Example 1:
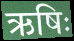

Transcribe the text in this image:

ऋषिः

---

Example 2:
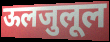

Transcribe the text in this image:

ऊलजुलूल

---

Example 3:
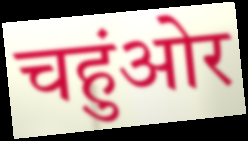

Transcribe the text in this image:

चहुंओर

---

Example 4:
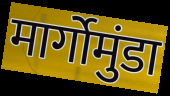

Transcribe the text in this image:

मार्गोमुंडा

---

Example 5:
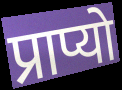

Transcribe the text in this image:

प्राप्यो